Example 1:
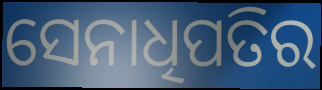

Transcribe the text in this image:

ସେନାଧିପତିର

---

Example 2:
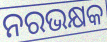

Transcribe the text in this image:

ନରଭକ୍ଷକ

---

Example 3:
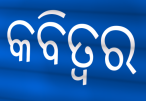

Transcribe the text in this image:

କବିତ୍ଵର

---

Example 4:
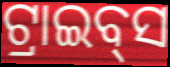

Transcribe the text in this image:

ଟ୍ରାଇବ୍‌ସ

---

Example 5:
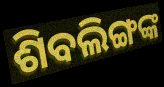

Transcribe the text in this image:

ଶିବଲିଙ୍ଗଙ୍କ